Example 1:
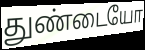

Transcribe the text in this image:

துண்டையோ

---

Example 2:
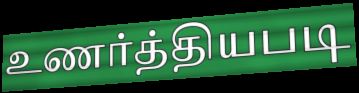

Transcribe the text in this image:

உணர்த்தியபடி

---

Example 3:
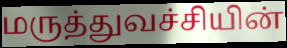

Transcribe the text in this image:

மருத்துவச்சியின்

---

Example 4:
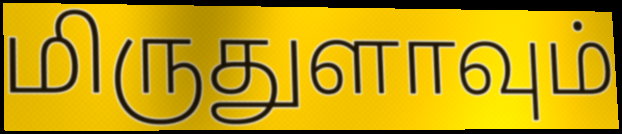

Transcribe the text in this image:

மிருதுளாவும்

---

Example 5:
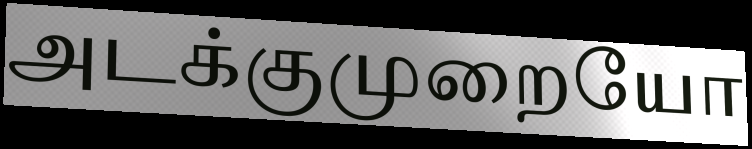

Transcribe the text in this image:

அடக்குமுறையோ